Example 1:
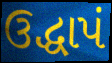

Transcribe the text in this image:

ઉદ્ધાપં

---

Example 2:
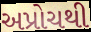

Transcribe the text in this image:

અપ્રોચથી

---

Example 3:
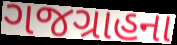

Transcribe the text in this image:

ગજગ્રાહના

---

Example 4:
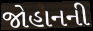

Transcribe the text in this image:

જોહાનની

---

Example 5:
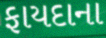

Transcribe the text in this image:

ફાયદાના